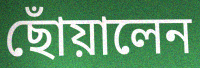
ছোঁয়ালেন